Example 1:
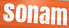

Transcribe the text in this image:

sonam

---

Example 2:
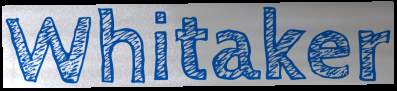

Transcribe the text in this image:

Whitaker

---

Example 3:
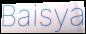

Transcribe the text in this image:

Baisya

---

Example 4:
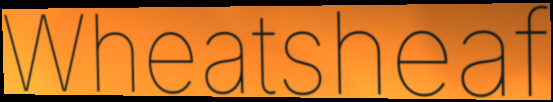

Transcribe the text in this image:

Wheatsheaf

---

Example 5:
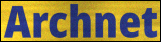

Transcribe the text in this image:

Archnet